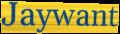
Jaywant